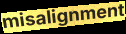
misalignment